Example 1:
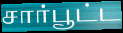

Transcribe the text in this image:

சார்பூட்ட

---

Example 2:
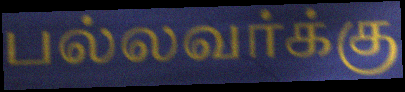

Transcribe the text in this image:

பல்லவர்க்கு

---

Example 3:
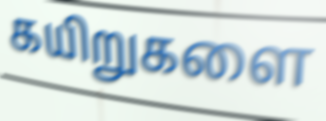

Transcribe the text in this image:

கயிறுகளை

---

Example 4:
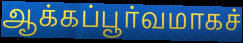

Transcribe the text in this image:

ஆக்கப்பூர்வமாகச்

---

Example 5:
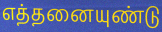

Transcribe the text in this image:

எத்தனையுண்டு